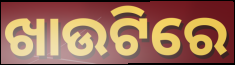
ଖାଉଟିରେ